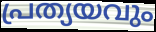
പ്രത്യയവും